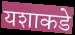
यशाकडे